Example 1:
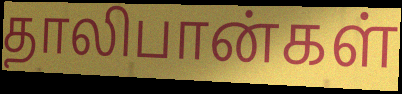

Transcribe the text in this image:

தாலிபான்கள்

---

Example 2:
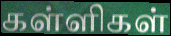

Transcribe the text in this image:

கள்ளிகள்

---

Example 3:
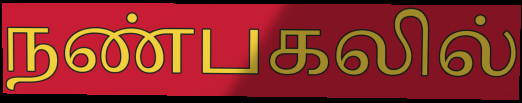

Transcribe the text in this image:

நண்பகலில்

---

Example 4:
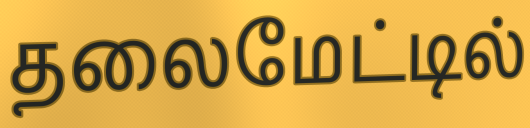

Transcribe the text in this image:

தலைமேட்டில்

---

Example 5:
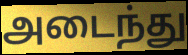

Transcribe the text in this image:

அடைந்து